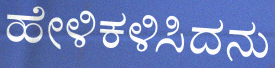
ಹೇಳಿಕಳಿಸಿದನು